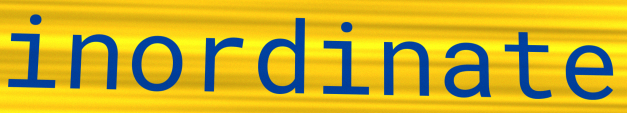
inordinate